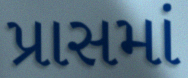
પ્રાસમાં